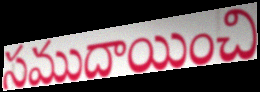
సముదాయించి